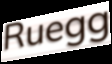
Ruegg